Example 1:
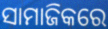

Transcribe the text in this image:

ସାମାଜିକରେ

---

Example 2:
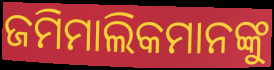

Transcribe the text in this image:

ଜମିମାଲିକମାନଙ୍କୁ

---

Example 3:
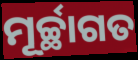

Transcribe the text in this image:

ମୂର୍ଚ୍ଛାଗତ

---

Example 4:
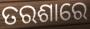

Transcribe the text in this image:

ତରଶାରେ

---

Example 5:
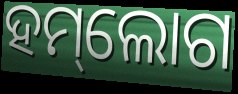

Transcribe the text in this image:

ହମ୍‌ଲୋଗ